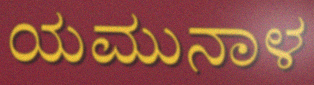
ಯಮುನಾಳ